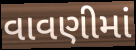
વાવણીમાં